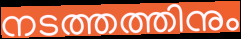
നടത്തത്തിനും